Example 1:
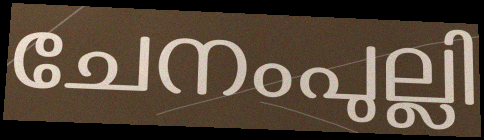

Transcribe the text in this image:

ചേനംപുല്ലി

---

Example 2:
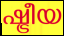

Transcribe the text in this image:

ഷ്ട്രീയ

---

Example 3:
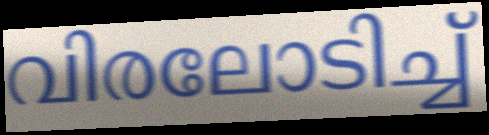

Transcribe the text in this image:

വിരലോടിച്ച്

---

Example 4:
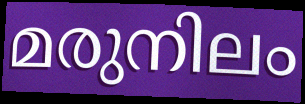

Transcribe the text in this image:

മരുനിലം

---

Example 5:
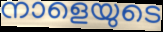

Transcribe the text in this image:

നാളെയുടെ